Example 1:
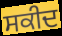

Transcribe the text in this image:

ਸਕੀਦ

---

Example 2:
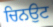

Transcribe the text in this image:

ਚਿਨਉਟ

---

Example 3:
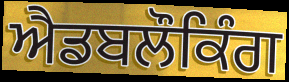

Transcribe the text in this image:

ਐਡਬਲੌਕਿੰਗ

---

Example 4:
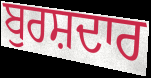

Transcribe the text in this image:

ਬੁਰਸ਼ਦਾਰ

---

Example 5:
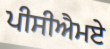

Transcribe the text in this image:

ਪੀਸੀਐਮਏ